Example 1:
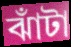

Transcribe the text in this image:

ঝাঁটা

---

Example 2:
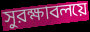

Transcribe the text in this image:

সুরক্ষাবলয়ে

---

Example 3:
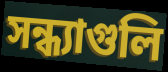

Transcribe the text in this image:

সন্ধ্যাগুলি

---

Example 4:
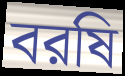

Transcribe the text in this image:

বরষি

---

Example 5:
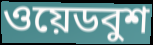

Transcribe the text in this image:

ওয়েডবুশ